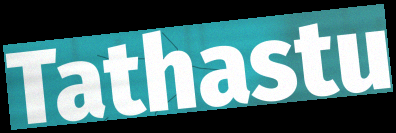
Tathastu